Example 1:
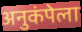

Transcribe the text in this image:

अनुकंपेला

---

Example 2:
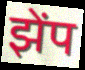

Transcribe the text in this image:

झेंप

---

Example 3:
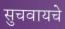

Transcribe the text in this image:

सुचवायचे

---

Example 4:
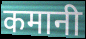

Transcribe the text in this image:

कमानी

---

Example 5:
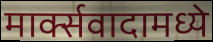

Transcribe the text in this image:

मार्क्सवादामध्ये